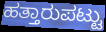
ಹತ್ತಾರುಪಟ್ಟು